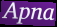
Apna